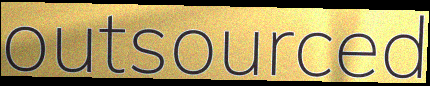
outsourced